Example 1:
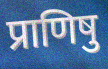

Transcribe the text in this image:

प्राणिषु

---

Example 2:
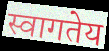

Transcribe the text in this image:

स्वागतेय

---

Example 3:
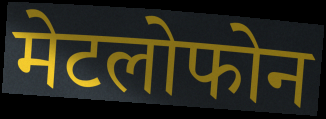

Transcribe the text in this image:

मेटलोफोन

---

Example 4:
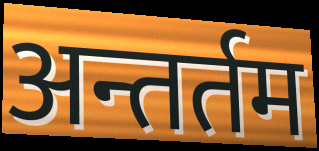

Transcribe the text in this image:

अन्तर्तम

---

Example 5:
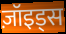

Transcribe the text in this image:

ज़ॉइड्स